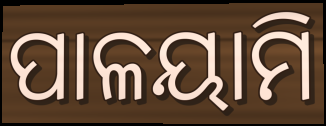
ପାଳୟାମି